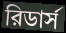
রিডার্স